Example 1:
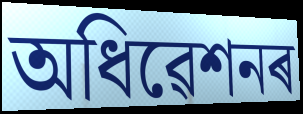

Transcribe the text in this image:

অধিৱেশনৰ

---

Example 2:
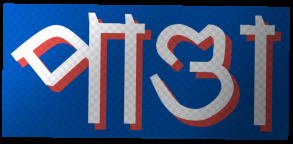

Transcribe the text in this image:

পাণ্ডা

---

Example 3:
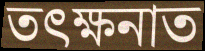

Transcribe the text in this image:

তৎক্ষনাত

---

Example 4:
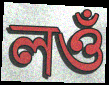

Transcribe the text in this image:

লওঁ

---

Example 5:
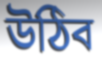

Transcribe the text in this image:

উঠিব